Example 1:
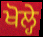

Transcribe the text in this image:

ਖੋਲ੍ਹੇ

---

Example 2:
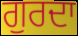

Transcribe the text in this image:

ਗੁਰਦਾ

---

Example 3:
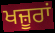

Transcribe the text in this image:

ਖਜ਼ੂਰਾਂ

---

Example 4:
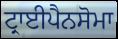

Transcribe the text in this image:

ਟ੍ਰਾਈਪੈਨਸੋਮਾ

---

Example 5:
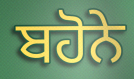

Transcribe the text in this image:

ਬਹੋਨੇ